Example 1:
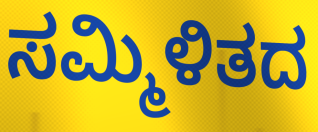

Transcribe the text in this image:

ಸಮ್ಮಿಳಿತದ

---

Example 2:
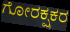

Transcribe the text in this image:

ಗೋರಕ್ಷಕರ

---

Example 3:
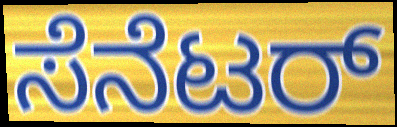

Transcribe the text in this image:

ಸೆನೆಟರ್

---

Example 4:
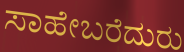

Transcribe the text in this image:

ಸಾಹೇಬರೆದುರು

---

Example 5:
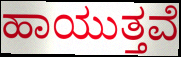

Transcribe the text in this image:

ಹಾಯುತ್ತವೆ